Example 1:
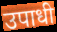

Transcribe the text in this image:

उपाधी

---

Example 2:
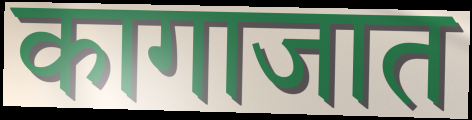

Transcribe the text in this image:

कागाजात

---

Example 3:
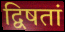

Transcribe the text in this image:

द्विषतां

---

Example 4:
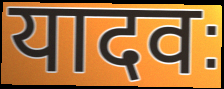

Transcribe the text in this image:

यादवः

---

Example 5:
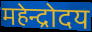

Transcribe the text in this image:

महेन्द्रोदय